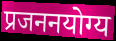
प्रजननयोग्य